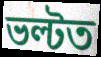
ভল্টত